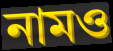
নামও